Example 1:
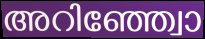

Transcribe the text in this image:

അറിഞ്ഞ്വോ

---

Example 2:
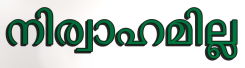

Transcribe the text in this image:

നിര്വാഹമില്ല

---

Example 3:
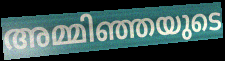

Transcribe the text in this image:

അമ്മിഞ്ഞയുടെ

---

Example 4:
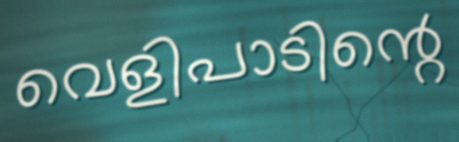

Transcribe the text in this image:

വെളിപാടിന്റെ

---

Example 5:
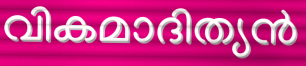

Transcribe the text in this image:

വികമാദിത്യൻ